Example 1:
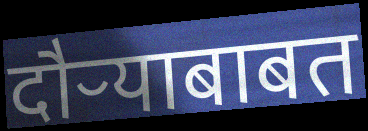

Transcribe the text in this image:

दौऱ्याबाबत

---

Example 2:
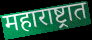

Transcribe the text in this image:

महाराष्ट्रात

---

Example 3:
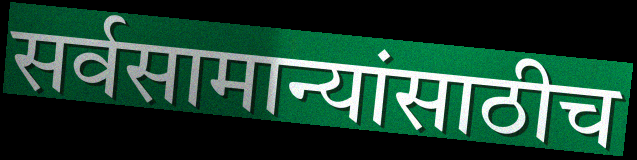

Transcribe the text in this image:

सर्वसामान्यांसाठीच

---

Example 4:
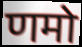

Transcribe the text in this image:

णमो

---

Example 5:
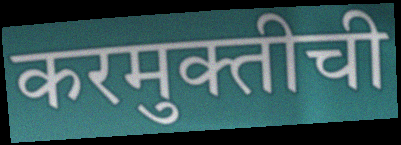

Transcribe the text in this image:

करमुक्तीची